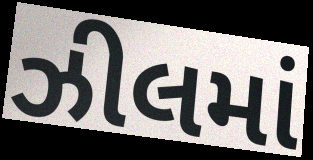
ઝીલમાં